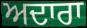
ਅਦਾਰਾ